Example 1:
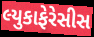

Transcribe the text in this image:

લ્યુકાફેરેસીસ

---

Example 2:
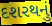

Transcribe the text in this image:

દશરથનું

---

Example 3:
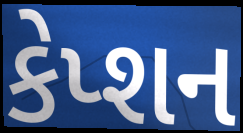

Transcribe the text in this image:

કેપ્શન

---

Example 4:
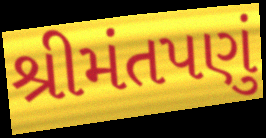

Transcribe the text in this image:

શ્રીમંતપણું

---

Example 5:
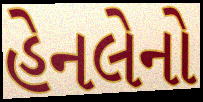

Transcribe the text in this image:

હેનલેનો